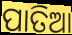
ପାତିଆ